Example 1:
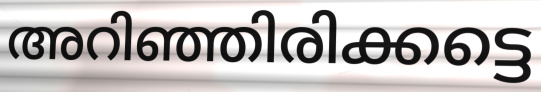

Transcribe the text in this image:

അറിഞ്ഞിരിക്കട്ടെ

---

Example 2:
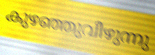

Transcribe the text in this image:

കുഴഞ്ഞുവീഴുന്നു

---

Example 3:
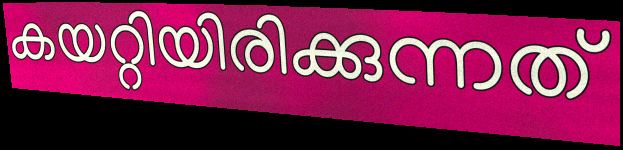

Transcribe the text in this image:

കയറ്റിയിരിക്കുന്നത്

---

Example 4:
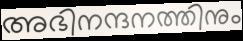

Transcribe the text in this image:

അഭിനന്ദനത്തിനും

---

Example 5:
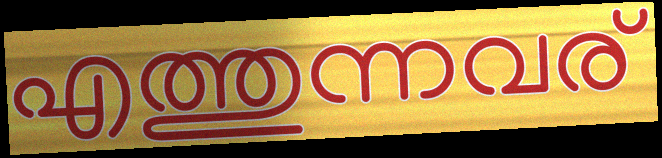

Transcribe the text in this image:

എത്തുന്നവര്